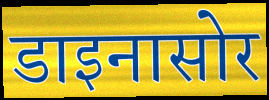
डाइनासोर